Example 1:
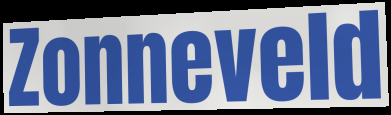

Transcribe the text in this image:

Zonneveld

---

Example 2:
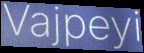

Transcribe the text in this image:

Vajpeyi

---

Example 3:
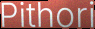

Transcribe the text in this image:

Pithori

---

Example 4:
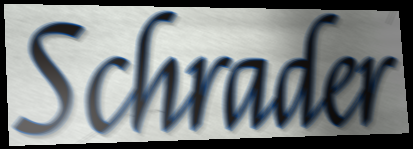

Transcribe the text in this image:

Schrader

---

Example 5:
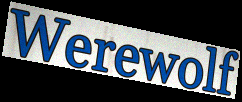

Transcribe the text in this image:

Werewolf